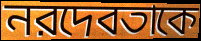
নরদেবতাকে